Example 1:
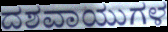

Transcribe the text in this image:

ದಶವಾಯುಗಳ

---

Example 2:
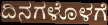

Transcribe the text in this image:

ದಿನಗಳೊಳಗೆ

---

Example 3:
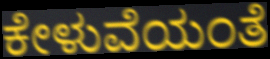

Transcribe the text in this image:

ಕೇಳುವೆಯಂತೆ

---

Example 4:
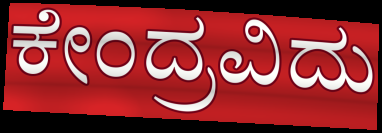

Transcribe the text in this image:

ಕೇಂದ್ರವಿದು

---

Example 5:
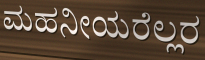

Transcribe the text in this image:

ಮಹನೀಯರೆಲ್ಲರ